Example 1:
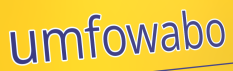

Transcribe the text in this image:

umfowabo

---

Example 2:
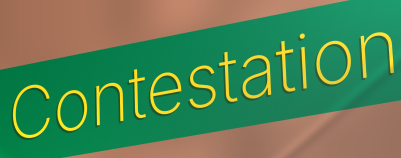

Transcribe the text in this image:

Contestation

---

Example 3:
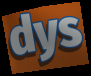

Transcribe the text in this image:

dys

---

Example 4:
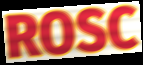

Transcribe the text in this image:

ROSC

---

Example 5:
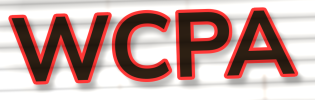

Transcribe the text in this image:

WCPA